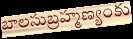
బాలసుబ్రహ్మణ్యంకు